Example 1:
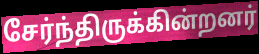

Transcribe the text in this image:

சேர்ந்திருக்கின்றனர்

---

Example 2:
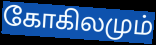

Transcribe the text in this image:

கோகிலமும்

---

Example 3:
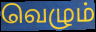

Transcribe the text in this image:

வெழும்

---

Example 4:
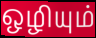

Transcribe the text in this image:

ஒழியும்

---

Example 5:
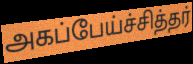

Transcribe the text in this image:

அகப்பேய்ச்சித்தர்